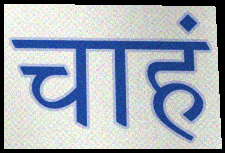
चाहं